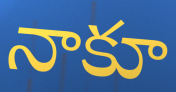
నాకూ